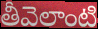
తీవెలాంటి